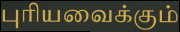
புரியவைக்கும்